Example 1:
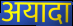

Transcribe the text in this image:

अयादा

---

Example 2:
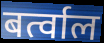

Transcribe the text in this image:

बर्त्वाल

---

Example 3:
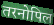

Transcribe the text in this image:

तरनोपिल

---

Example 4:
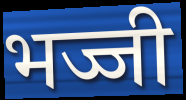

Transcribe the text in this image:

भज्जी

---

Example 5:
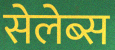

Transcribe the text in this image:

सेलेब्स